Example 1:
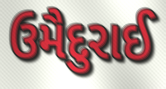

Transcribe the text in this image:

ઉમૈદુરાઈ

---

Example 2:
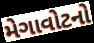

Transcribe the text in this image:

મેગાવોટનો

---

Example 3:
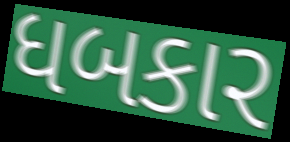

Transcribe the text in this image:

ધબકાર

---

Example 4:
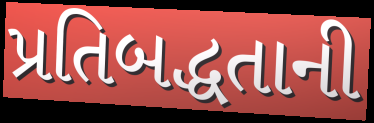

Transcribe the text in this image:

પ્રતિબદ્ધતાની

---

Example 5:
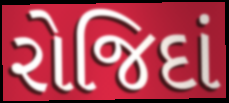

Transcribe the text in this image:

રોજિદાં